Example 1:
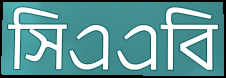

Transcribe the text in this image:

সিএএবি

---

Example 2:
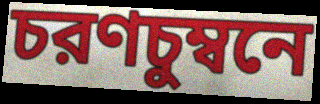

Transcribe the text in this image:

চরণচুম্বনে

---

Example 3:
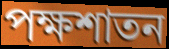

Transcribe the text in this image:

পক্ষশাতন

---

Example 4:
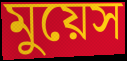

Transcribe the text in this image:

মুয়েস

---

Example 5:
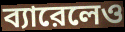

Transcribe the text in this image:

ব্যারেলেও